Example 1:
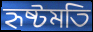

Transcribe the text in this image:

হৃষ্টমতি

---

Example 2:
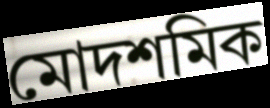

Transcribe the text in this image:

মোদশমিক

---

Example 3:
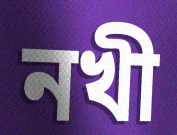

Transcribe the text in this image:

নখী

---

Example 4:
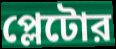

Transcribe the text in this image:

প্লেটোর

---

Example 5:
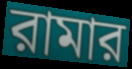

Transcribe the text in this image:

রামার